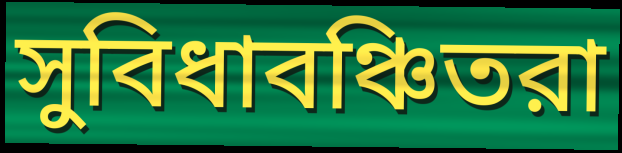
সুবিধাবঞ্চিতরা